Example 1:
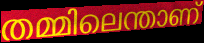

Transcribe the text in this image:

തമ്മിലെന്താണ്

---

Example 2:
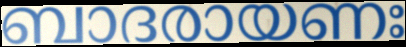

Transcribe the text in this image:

ബാദരായണഃ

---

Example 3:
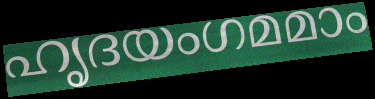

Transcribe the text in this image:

ഹൃദയംഗമമാം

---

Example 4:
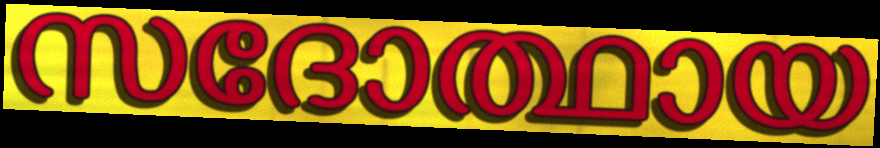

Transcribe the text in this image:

സദോത്ഥായ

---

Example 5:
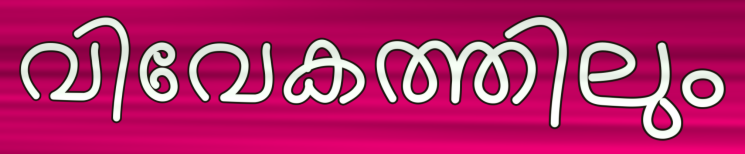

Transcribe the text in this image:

വിവേകത്തിലും